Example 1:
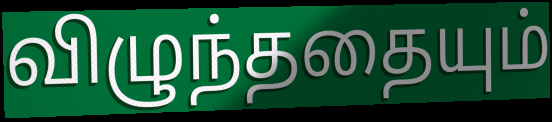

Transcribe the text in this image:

விழுந்ததையும்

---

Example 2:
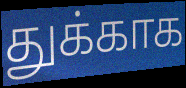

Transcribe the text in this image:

துக்காக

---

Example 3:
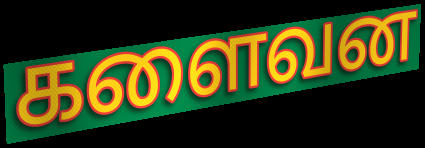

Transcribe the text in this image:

களைவன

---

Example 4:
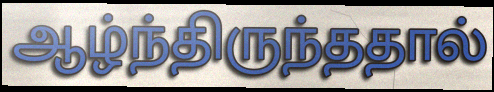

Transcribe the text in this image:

ஆழ்ந்திருந்ததால்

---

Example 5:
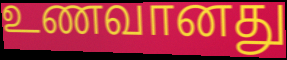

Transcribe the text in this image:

உணவானது